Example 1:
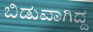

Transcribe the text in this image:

ಬಿಡುವಾಗಿದ್ದ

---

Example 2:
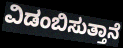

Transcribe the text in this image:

ವಿಡಂಬಿಸುತ್ತಾನೆ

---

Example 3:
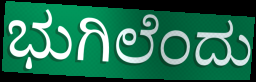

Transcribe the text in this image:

ಭುಗಿಲೆಂದು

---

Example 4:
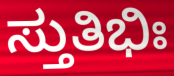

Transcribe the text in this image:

ಸ್ತುತಿಭಿಃ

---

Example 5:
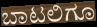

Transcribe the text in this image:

ಬಾಟಲಿಗೂ